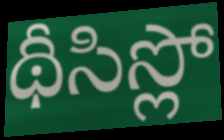
థీసిస్లో